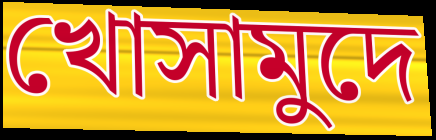
খোসামুদে